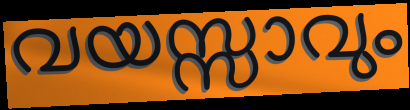
വയസ്സാവും